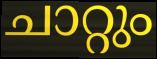
ചാറ്റും